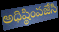
అధిష్ఠింపజేసి